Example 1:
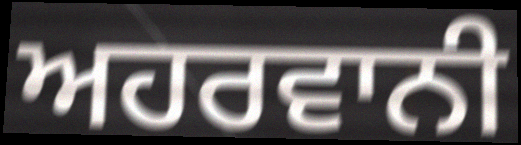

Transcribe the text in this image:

ਅਹਰਵਾਨੀ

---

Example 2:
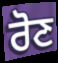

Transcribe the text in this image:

ਰੋਣ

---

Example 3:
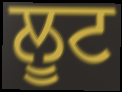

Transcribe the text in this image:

ਲੂਟ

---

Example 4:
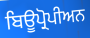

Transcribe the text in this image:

ਬਿਊਪ੍ਰੋਪੀਅਨ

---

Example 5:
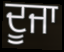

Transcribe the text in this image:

ਦੂਜਾ